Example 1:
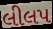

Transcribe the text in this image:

લીલપ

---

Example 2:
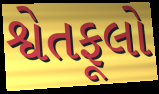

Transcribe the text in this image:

શ્વેતફૂલો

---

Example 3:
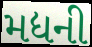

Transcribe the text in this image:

મદ્યની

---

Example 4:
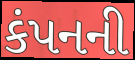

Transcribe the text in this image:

કંપનની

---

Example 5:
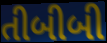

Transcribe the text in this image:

તીબીબી